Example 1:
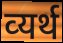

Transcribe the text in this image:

व्‍यर्थ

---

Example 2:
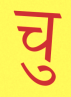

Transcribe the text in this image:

चु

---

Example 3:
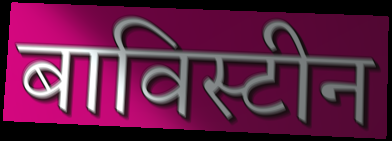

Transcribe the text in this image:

बाविस्टीन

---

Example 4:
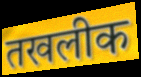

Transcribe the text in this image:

तखलीक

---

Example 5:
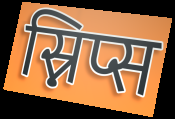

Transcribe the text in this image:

स्निप्स